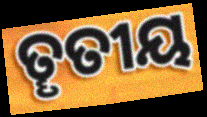
ତୄତୀୟ